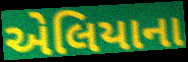
એલિયાના